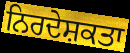
ਨਿਰਦੇਸ਼ਕਤਾ